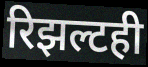
रिझल्टही